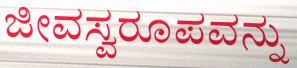
ಜೀವಸ್ವರೂಪವನ್ನು